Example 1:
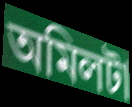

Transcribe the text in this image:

অমিলটা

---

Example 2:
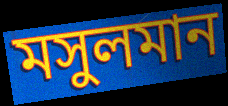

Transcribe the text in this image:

মসুলমান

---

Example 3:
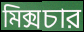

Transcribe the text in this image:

মিক্সচার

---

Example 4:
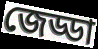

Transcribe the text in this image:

জেড্ডা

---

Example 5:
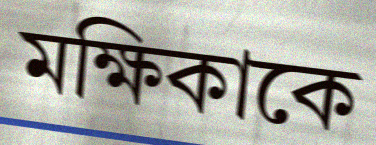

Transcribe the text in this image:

মক্ষিকাকে